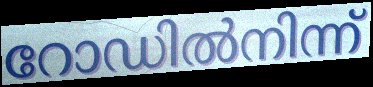
റോഡിൽനിന്ന്